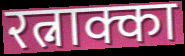
रत्नाक्का